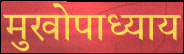
मुखोपाध्‍याय